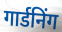
गार्डनिंग